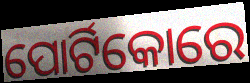
ପୋର୍ଟିକୋରେ